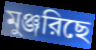
মুঞ্জরিছে